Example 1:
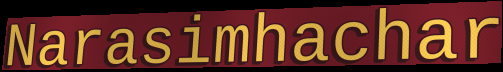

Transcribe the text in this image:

Narasimhachar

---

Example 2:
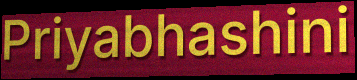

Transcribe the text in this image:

Priyabhashini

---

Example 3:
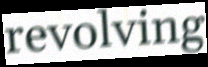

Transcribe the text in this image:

revolving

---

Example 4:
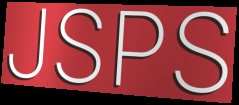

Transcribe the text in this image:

JSPS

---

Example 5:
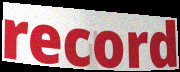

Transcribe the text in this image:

record